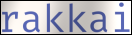
rakkai